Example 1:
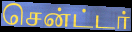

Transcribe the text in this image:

சென்ட்டர்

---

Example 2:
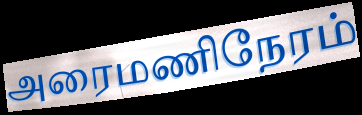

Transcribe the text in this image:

அரைமணிநேரம்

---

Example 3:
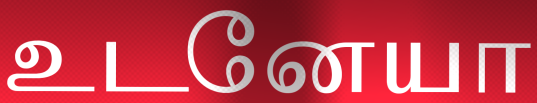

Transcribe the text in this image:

உடனேயா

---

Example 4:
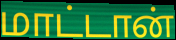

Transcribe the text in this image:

மாட்டான்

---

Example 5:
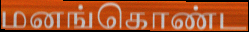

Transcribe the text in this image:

மனங்கொண்ட